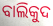
ବାଲିକୁଦ